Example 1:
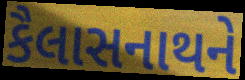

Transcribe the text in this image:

કૈલાસનાથને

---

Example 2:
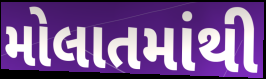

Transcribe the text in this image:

મોલાતમાંથી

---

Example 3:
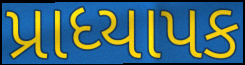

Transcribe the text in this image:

પ્રાધ્યાપક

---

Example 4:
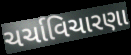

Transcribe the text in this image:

ચર્ચાવિચારણા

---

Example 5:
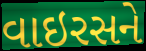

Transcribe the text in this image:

વાઇરસને